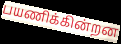
பயணிக்கின்றன